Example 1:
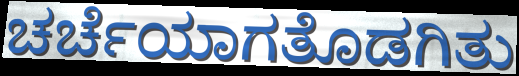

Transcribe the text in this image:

ಚರ್ಚೆಯಾಗತೊಡಗಿತು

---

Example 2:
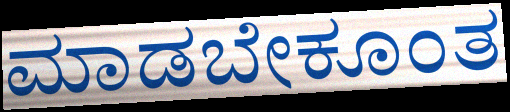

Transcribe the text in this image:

ಮಾಡಬೇಕೂಂತ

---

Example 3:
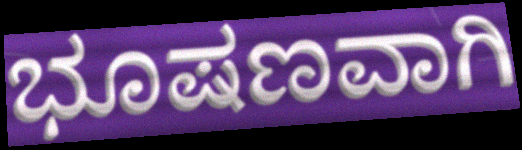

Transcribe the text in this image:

ಭೂಷಣವಾಗಿ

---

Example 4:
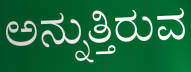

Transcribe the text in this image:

ಅನ್ನುತ್ತಿರುವ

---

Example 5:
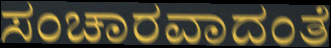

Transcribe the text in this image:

ಸಂಚಾರವಾದಂತೆ